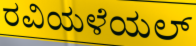
ರವಿಯಳೆಯಲ್